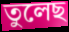
তুলেছ